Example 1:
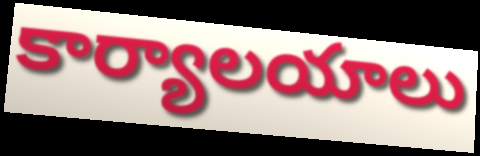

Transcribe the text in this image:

కార్యాలయాలు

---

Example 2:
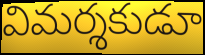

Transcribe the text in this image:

విమర్శకుడూ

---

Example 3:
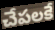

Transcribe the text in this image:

చేపలకే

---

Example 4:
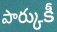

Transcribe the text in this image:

పార్కుకీ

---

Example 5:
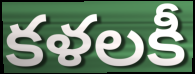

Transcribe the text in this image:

కళలకీ